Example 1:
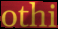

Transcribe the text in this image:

othi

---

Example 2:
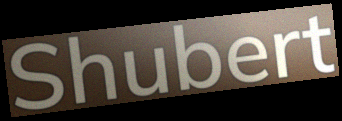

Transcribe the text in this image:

Shubert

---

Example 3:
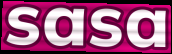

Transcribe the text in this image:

sasa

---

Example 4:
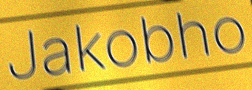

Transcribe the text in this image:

Jakobho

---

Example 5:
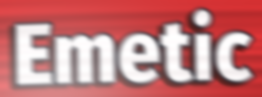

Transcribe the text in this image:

Emetic